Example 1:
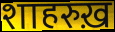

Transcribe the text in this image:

शाहरुख़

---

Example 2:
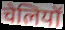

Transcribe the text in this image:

चेलियों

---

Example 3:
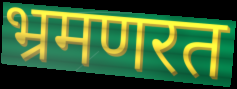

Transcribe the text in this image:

भ्रमणरत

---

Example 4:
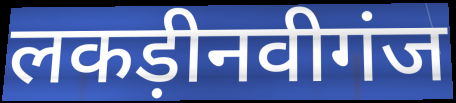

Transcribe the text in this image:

लकड़ीनवीगंज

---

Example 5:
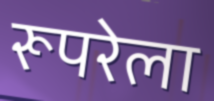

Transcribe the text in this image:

रूपरेला